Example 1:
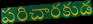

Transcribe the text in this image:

పరిచారకుడ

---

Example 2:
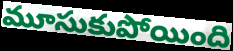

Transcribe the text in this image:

మూసుకుపోయింది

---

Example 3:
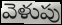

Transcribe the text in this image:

వెళుపు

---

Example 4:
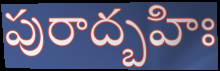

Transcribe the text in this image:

పురాద్బహిః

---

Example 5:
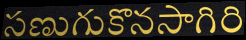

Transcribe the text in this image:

సణుగుకొనసాగిరి